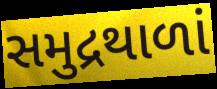
સમુદ્રથાળાં